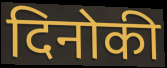
दिनोकी